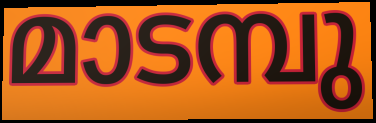
മാടമ്പു